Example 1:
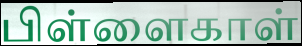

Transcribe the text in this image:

பிள்ளைகாள்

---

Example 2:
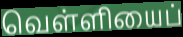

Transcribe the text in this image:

வெள்ளியைப்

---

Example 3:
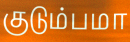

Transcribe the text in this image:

குடும்பமா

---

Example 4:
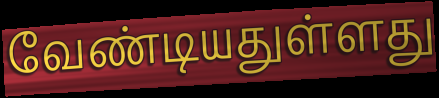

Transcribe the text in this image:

வேண்டியதுள்ளது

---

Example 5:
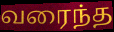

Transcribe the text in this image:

வரைந்த